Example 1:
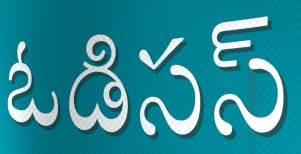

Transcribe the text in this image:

ఓడిసస్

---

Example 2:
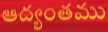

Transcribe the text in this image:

ఆద్యంతము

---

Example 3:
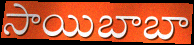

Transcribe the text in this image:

సాయిబాబా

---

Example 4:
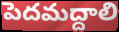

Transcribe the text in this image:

పెదమద్దాలి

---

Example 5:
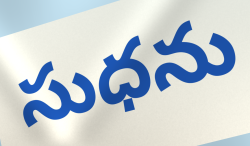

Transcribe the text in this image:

సుధను